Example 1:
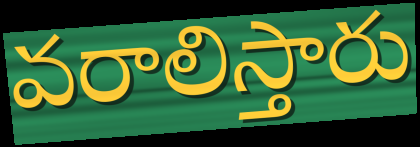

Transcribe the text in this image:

వరాలిస్తారు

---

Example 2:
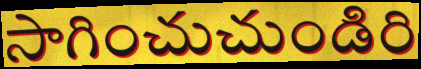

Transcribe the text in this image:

సాగించుచుండిరి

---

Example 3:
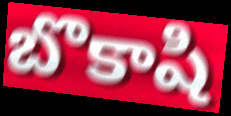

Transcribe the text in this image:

బొకాషి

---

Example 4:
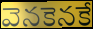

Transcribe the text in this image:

వెనకెనకే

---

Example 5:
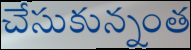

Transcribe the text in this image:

చేసుకున్నంత